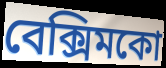
বেক্সিমকো